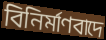
বিনিৰ্মাণবাদে